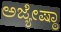
ಅಜ್ಯೇಷ್ಠಾ